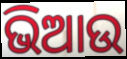
ଭିଆଉ